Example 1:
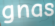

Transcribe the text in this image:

gnas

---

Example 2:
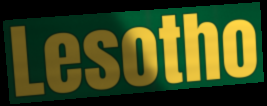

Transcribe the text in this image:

Lesotho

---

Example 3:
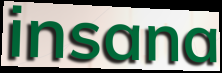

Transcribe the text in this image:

insana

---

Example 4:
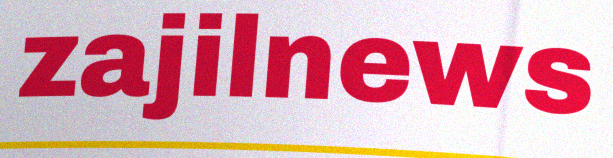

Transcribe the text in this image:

zajilnews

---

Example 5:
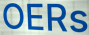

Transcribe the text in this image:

OERs